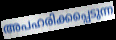
അപഹരിക്കപ്പെടുന്ന